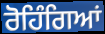
ਰੋਹਿੰਗਿਆਂ